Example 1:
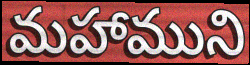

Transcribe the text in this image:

మహాముని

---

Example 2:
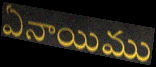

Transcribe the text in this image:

ఏనాయిము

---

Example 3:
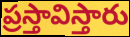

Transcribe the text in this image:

ప్రస్తావిస్తారు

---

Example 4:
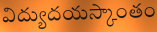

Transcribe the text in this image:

విద్యుదయస్కాంతం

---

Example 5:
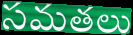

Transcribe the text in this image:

సమతలు